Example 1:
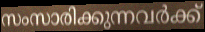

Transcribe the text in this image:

സംസാരിക്കുന്നവർക്ക്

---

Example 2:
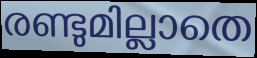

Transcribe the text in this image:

രണ്ടുമില്ലാതെ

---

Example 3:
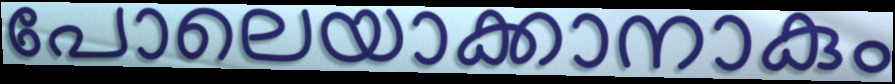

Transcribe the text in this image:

പോലെയാക്കാനാകും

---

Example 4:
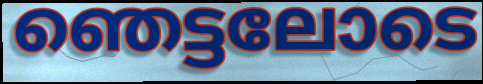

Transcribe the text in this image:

ഞെട്ടലോടെ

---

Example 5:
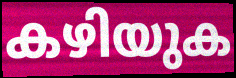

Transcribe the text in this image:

കഴിയുക